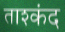
ताश्कंद